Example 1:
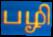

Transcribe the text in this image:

பழி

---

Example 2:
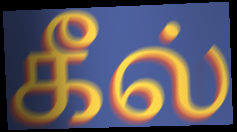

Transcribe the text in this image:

கீல்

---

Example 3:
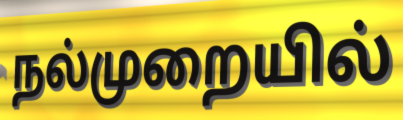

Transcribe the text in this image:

நல்முறையில்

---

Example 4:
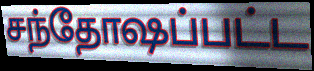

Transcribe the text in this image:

சந்தோஷப்பட்ட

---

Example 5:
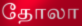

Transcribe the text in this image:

தோலா